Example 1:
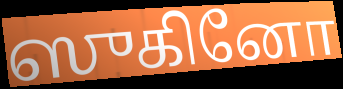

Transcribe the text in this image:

ஸுகினோ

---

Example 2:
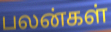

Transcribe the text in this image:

பலன்கள்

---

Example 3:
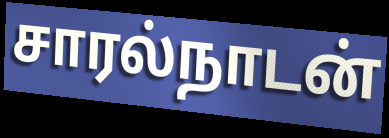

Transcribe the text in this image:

சாரல்நாடன்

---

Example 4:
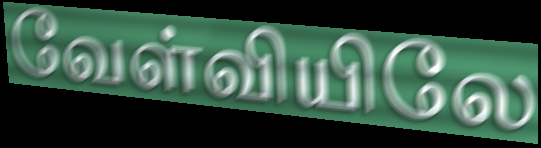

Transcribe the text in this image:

வேள்வியிலே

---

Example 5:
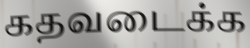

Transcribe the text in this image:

கதவடைக்க